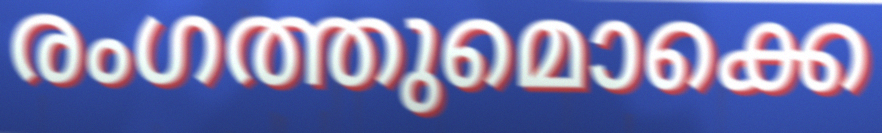
രംഗത്തുമൊക്കെ